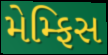
મેમ્ફિસ